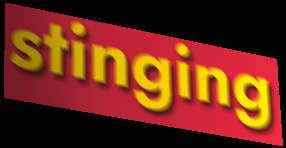
stinging